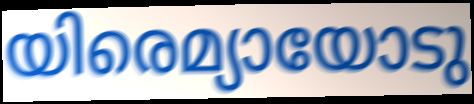
യിരെമ്യായോടു